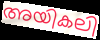
അയികലി